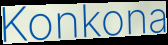
Konkona